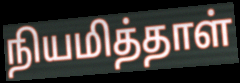
நியமித்தாள்